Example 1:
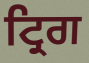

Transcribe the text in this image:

ਟ੍ਰਿਗ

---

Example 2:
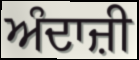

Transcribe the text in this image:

ਅੰਦਾਜ਼ੀ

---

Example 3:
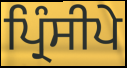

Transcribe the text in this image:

ਪ੍ਰਿੰਸੀਪੇ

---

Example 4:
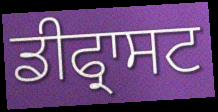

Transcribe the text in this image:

ਡੀਫ੍ਰਾਸਟ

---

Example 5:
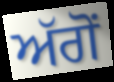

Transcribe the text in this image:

ਅੱਗੋਂ